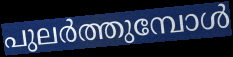
പുലർത്തുമ്പോൾ